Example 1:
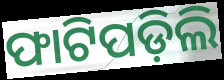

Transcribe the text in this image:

ଫାଟିପଡ଼ିଲି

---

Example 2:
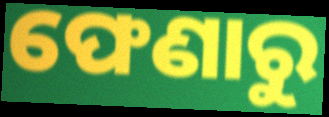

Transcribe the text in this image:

ଫେଣାରୁ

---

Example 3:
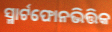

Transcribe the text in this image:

ସ୍ମାର୍ଟଫୋନଭିତ୍ତିକ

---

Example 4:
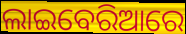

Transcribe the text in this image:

ଲାଇବେରିଆରେ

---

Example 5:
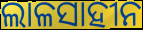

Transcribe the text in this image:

ଲାଳସାହୀନ